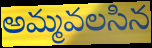
అమ్మవలసిన